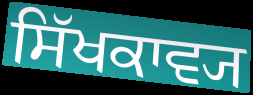
ਸਿੱਖਕਾਵ੍ਯ